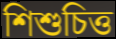
শিশুচিত্ত